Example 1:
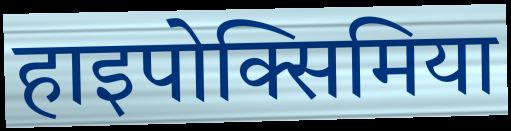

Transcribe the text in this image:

हाइपोक्सिमिया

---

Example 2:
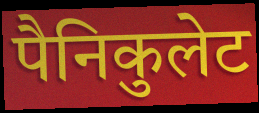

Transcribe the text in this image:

पैनिकुलेट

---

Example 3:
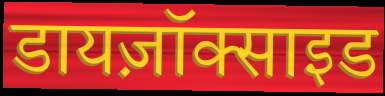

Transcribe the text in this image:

डायज़ॉक्साइड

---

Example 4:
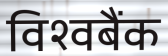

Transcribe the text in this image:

विश्वबैंक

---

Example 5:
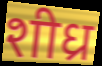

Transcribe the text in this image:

शीध्र